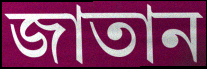
জাতান